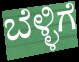
ಬೆಳ್ಳಿಗೆ